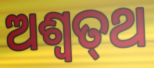
ଅଶ୍ଵତ୍‍ଥ